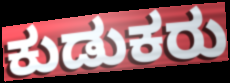
ಕುಡುಕರು